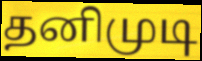
தனிமுடி